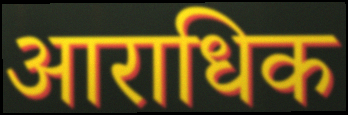
आराधिक